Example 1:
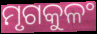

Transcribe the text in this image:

ମୃଗକୁଳଂ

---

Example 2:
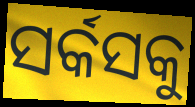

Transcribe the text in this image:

ସର୍କସକୁ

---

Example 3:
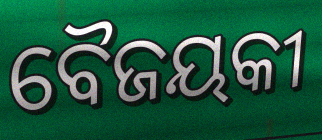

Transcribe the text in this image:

ବୈଜୟକୀ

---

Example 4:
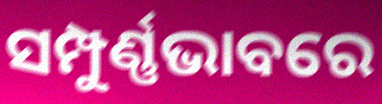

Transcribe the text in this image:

ସମ୍ପୁର୍ଣ୍ଣଭାବରେ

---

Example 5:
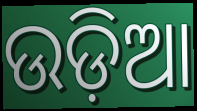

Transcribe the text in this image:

ଉଡ଼ିଆ